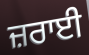
ਜ਼ਰਾਈ